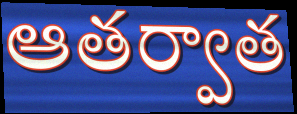
ఆతర్వాత